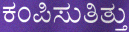
ಕಂಪಿಸುತಿತ್ತು